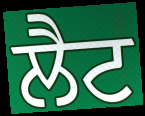
ਲੈਟ